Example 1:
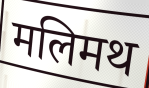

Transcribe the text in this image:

मलिमथ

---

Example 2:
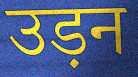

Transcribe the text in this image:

उड़न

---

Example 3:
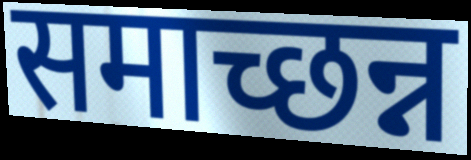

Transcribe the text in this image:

समाच्छन्न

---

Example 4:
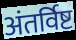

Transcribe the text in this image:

अंतर्विष्ट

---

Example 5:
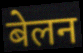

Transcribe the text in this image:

बेलन